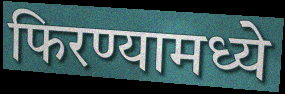
फिरण्यामध्ये